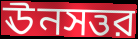
ঊনসত্তর